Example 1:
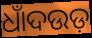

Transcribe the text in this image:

ଧାଁଦଉଡ଼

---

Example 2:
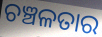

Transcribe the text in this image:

ଚଞ୍ଚଳତାର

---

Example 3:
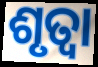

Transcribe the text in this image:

ଶୃତ୍ୱା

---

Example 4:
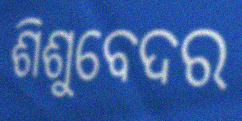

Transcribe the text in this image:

ଶିଶୁବେଦର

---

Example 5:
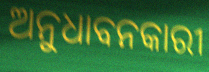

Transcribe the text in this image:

ଅନୁଧାବନକାରୀ